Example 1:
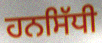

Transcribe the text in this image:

ਹਨਸਿੱਧੀ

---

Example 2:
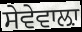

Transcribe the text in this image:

ਸੇਵੇਵਾਲ਼ਾ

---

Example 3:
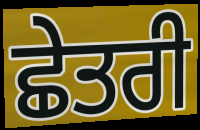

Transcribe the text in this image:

ਛੇਤਰੀ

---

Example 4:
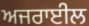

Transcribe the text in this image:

ਅਜਰਾਈਲ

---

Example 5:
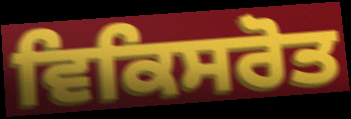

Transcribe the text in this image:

ਵਿਕਿਸਰੋਤ